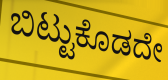
ಬಿಟ್ಟುಕೊಡದೇ